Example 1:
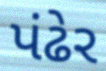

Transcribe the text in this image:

પંઢેર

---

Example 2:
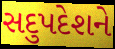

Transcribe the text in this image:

સદુપદેશને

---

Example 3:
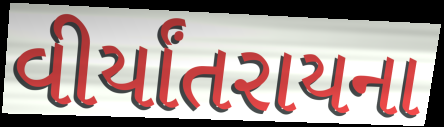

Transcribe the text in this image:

વીર્યાંતરાયના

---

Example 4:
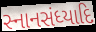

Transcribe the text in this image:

સ્નાનસંધ્યાદિ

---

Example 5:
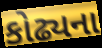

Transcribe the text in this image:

કોઢ્યના